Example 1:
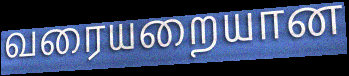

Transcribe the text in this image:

வரையறையான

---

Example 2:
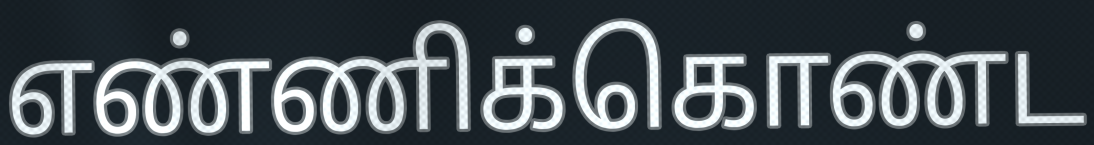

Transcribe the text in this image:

எண்ணிக்கொண்ட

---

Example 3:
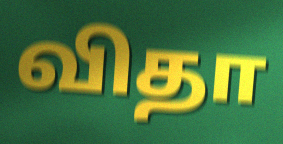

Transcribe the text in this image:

விதா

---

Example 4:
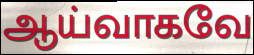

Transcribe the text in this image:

ஆய்வாகவே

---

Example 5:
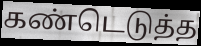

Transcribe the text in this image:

கண்டெடுத்த